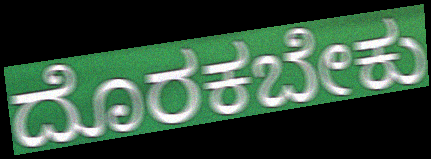
ದೊರಕಬೇಕು